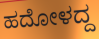
ಹದೋಳದ್ದ